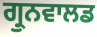
ਗ੍ਰੁਨਵਾਲਡ